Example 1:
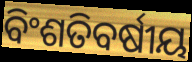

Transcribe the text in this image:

ବିଂଶତିବର୍ଷୀୟ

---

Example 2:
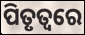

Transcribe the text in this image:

ପିତୃତ୍ୱରେ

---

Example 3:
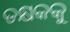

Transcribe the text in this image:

ତକ୍ଷକକୁ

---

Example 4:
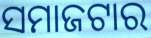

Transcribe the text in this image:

ସମାଜଟାର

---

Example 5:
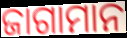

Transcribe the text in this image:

ଜାଗାମାନ